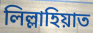
লিল্লাহিয়াত